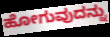
ಹೋಗುವುದನ್ನು